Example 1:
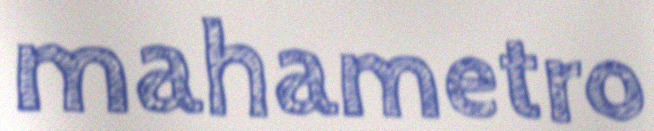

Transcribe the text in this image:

mahametro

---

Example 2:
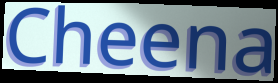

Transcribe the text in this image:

Cheena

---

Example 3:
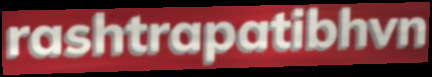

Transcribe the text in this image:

rashtrapatibhvn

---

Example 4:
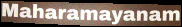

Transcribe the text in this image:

Maharamayanam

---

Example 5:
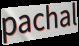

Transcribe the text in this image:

pachal